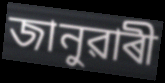
জানুৱাৰী